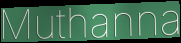
Muthanna